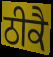
ਠੀਕੈ